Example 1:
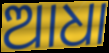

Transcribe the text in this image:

ଆଧା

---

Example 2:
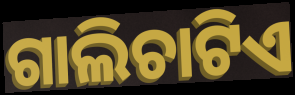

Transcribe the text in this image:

ଗାଲିଚାଟିଏ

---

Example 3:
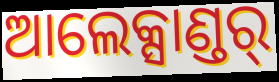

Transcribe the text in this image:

ଆଲେକ୍ସାଣ୍ଡର୍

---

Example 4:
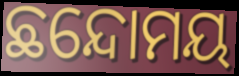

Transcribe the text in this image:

ଛନ୍ଦୋମୟ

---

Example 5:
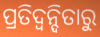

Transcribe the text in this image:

ପ୍ରତିଦ୍ୱନ୍ଦିତାରୁ